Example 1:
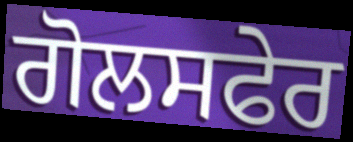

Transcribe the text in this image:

ਗੋਲਸਫੇਰ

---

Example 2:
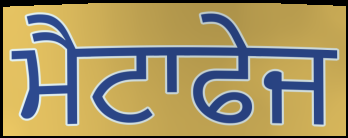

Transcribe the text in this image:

ਮੈਟਾਫੇਜ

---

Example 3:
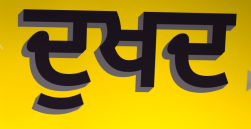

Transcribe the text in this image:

ਦੁਖਦ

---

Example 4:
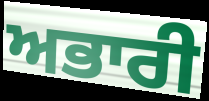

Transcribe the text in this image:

ਅਭਾਰੀ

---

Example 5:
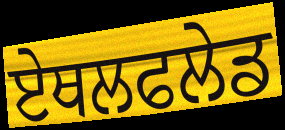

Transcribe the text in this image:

ਏਥਲਫਲੇਡ